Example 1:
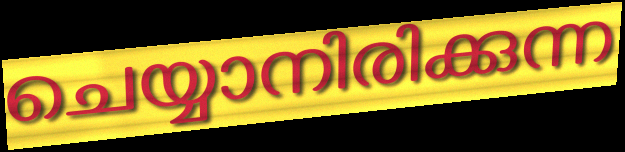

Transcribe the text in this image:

ചെയ്യാനിരിക്കുന്ന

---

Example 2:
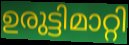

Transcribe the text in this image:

ഉരുട്ടിമാറ്റി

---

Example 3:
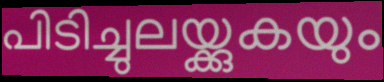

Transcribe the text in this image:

പിടിച്ചുലയ്ക്കുകയും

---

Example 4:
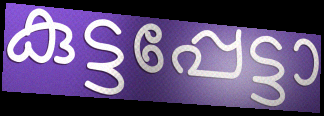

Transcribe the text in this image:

കുട്ടപ്പേട്ടാ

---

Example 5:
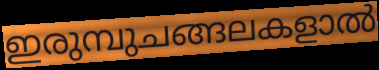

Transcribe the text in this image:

ഇരുമ്പുചങ്ങലകളാൽ